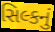
સિલ્કનું